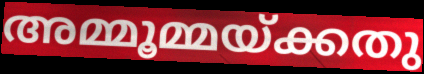
അമ്മൂമ്മയ്ക്കതു